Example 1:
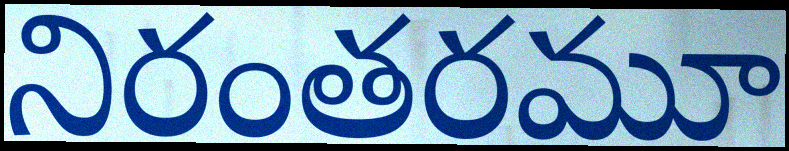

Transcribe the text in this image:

నిరంతరమూ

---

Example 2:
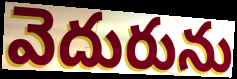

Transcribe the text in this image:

వెదురును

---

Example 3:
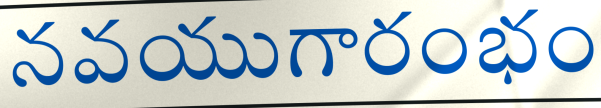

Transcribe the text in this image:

నవయుగారంభం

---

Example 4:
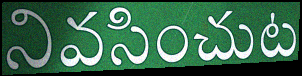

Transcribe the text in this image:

నివసించుట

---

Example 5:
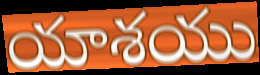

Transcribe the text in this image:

యాశయు